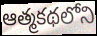
ఆత్మకథలోని